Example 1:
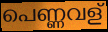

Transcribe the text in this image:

പെണ്ണവള്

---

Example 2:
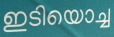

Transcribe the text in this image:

ഇടിയൊച്ച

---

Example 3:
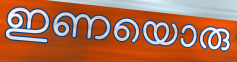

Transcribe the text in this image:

ഇണയൊരു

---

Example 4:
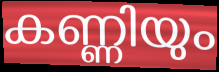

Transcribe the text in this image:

കണ്ണിയും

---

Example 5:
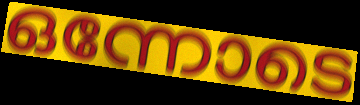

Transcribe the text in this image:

ഒന്നോടെ